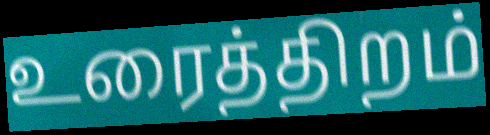
உரைத்திறம்